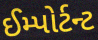
ઈમ્પોર્ટન્ટ